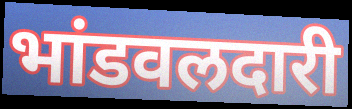
भांडवलदारी